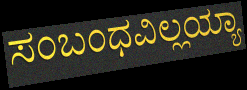
ಸಂಬಂಧವಿಲ್ಲಯ್ಯಾ